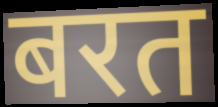
बरत